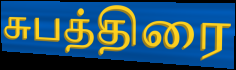
சுபத்திரை